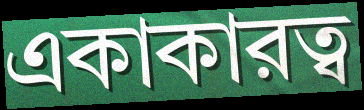
একাকারত্ব